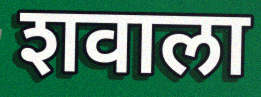
शवाला